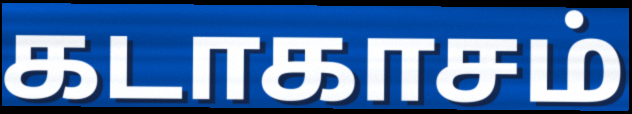
கடாகாசம்